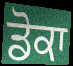
ਡੋਕਾ